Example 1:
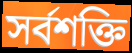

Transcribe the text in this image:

সর্বশক্তি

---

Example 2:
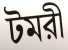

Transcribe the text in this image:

টমরী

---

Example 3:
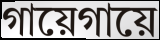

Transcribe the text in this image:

গায়েগায়ে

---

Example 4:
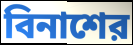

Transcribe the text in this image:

বিনাশের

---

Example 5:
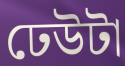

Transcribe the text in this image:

ঢেউটা